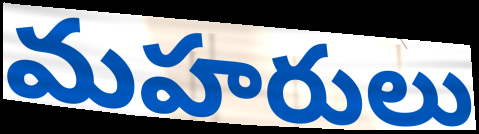
మహరులు